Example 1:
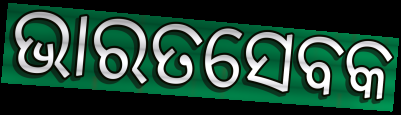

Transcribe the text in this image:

ଭାରତସେବକ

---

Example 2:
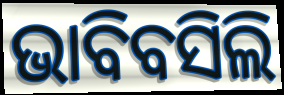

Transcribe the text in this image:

ଭାବିବସିଲି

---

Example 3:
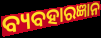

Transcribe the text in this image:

ବ୍ୟବହାରଜ୍ଞାନ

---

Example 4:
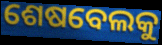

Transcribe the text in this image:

ଶେଷବେଲକୁ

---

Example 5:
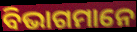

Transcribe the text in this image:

ବିଭାଗମାନେ